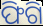
ଫିଗି